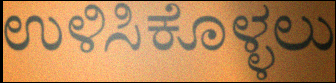
ಉಳಿಸಿಕೊಳ್ಳಲು